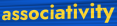
associativity